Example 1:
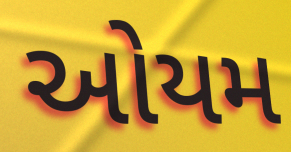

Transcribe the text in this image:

ઓયમ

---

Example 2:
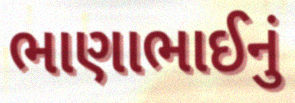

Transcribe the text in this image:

ભાણાભાઈનું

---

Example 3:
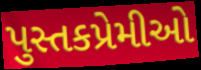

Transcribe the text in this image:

પુસ્તકપ્રેમીઓ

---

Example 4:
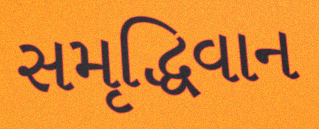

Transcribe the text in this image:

સમૃદ્ધિવાન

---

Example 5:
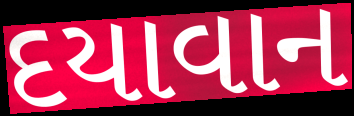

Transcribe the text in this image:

દયાવાન